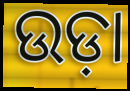
ଉଡ଼ା